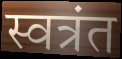
स्वत्रंत